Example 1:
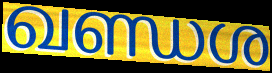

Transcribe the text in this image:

ഖണ്ഡശ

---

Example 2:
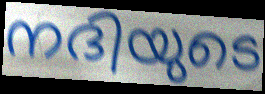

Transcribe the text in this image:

നദിയുടെ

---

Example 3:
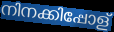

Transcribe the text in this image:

നിനക്കിപ്പോള്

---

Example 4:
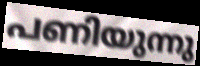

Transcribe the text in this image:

പണിയുന്നു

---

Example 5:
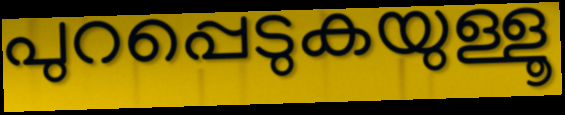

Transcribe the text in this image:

പുറപ്പെടുകയുള്ളൂ